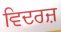
ਵਿਦਰਜ਼